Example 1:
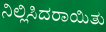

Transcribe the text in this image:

ನಿಲ್ಲಿಸಿದರಾಯಿತು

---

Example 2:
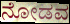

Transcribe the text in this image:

ನೋಡವ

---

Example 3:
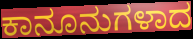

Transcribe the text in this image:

ಕಾನೂನುಗಳಾದ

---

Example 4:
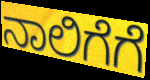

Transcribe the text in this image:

ನಾಲಿಗೆಗೆ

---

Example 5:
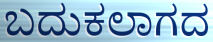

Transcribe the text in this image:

ಬದುಕಲಾಗದ